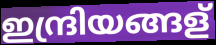
ഇന്ദ്രിയങ്ങള്